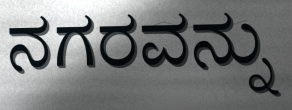
ನಗರವನ್ನು